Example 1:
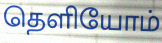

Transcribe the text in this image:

தெளியோம்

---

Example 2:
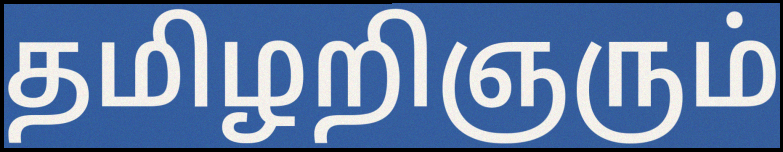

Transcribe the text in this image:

தமிழறிஞரும்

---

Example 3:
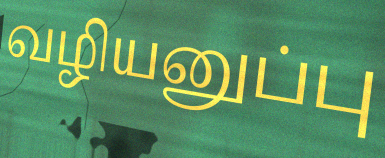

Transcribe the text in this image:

வழியனுப்பு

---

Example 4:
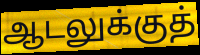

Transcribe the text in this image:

ஆடலுக்குத்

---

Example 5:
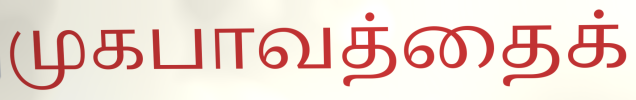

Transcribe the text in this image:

முகபாவத்தைக்